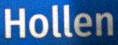
Hollen